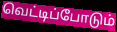
வெட்டிப்போடும்